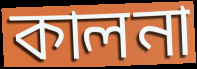
কালনা